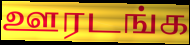
ஊரடங்க